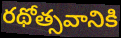
రథోత్సవానికి